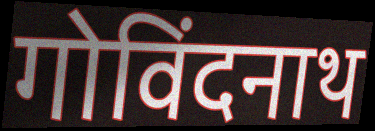
गोविंदनाथ